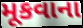
મૂકવાના